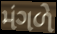
મંગળે